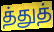
த்துத்